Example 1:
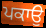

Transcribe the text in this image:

ਪਕਾਉ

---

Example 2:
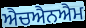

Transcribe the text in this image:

ਐਚਐਨਐਮ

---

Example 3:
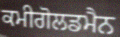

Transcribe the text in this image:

ਕਮੀਗੋਲਡਮੈਨ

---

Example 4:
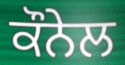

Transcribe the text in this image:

ਕੌਨੇਲ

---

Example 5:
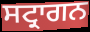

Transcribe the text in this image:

ਸਟ੍ਰਾਗਨ